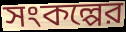
সংকল্পের